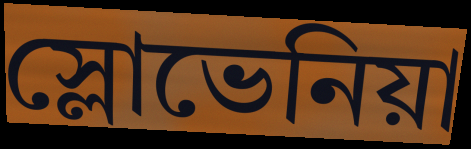
স্লোভেনিয়া